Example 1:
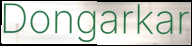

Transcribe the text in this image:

Dongarkar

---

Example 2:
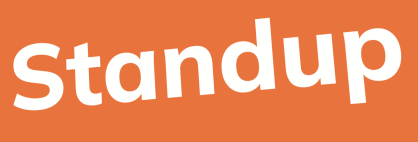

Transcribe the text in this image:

Standup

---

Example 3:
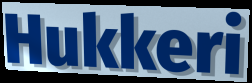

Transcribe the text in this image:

Hukkeri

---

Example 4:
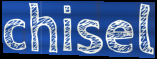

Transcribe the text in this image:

chisel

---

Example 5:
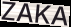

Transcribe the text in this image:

ZAKA